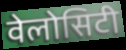
वेलोसिटी